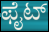
ಫೈಟ್